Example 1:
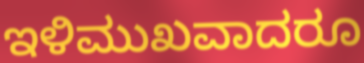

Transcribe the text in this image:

ಇಳಿಮುಖವಾದರೂ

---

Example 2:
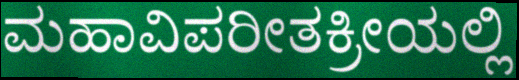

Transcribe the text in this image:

ಮಹಾವಿಪರೀತಕ್ರೀಯಲ್ಲಿ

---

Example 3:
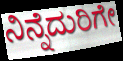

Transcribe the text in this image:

ನಿನ್ನೆದುರಿಗೇ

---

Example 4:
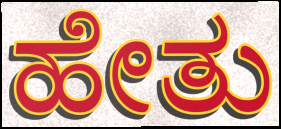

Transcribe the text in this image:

ಹೇತು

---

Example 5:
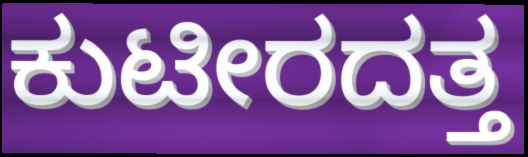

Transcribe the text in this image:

ಕುಟೀರದತ್ತ